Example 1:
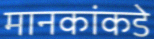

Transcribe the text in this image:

मानकांकडे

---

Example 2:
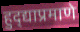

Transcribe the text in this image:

हुद्द्याप्रमाणे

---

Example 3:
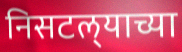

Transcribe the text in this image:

निसटल्याच्या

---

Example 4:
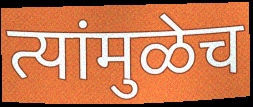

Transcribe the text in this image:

त्यांमुळेच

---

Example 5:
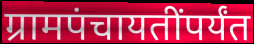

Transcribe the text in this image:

ग्रामपंचायतींपर्यंत